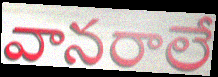
వానరాలే